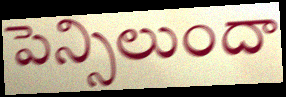
పెన్సిలుందా